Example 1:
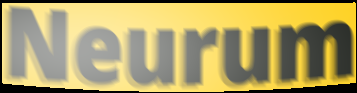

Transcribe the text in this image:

Neurum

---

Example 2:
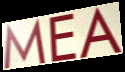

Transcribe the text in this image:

MEA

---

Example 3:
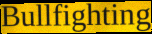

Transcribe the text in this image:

Bullfighting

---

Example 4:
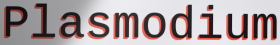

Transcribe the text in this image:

Plasmodium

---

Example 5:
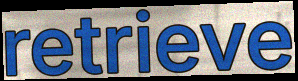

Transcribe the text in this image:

retrieve